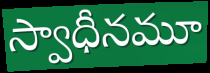
స్వాధీనమూ